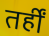
तर्हीं